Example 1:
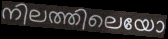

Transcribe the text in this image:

നിലത്തിലെയോ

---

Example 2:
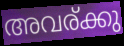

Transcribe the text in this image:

അവര്ക്കു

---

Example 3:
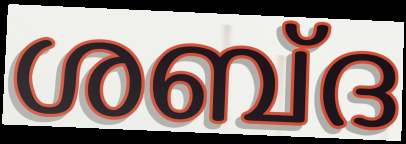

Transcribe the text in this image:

ശബ്‌ദ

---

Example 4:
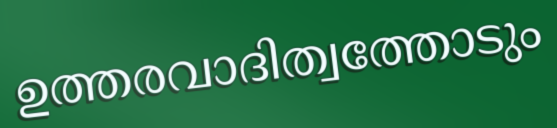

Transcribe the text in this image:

ഉത്തരവാദിത്വത്തോടും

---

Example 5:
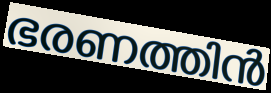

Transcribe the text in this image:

ഭരണത്തിൻ